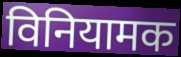
विनियामक